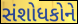
સંશોધકોને